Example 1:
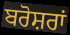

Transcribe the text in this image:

ਬਰੋਸ਼ਰਾਂ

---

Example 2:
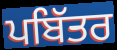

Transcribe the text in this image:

ਪਬਿੱਤਰ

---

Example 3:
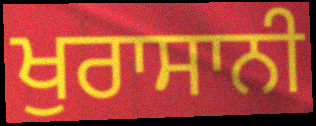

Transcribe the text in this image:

ਖੁਰਾਸਾਨੀ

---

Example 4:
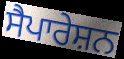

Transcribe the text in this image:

ਸੈਪਾਰੇਸ਼ਨ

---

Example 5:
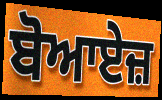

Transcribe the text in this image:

ਬੋਆਏਜ਼